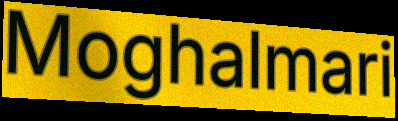
Moghalmari